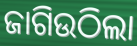
ଜାଗିଉଠିଲା